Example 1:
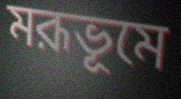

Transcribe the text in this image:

মরূভূমে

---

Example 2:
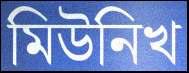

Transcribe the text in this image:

মিউনিখ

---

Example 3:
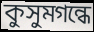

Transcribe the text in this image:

কুসুমগন্ধে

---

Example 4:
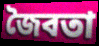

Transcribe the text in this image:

জৈবতা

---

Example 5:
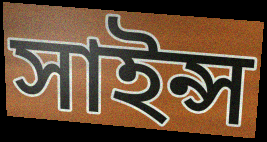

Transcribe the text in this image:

সাইন্স